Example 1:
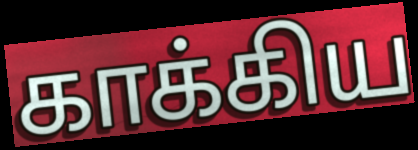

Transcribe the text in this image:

காக்கிய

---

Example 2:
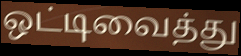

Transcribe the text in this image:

ஒட்டிவைத்து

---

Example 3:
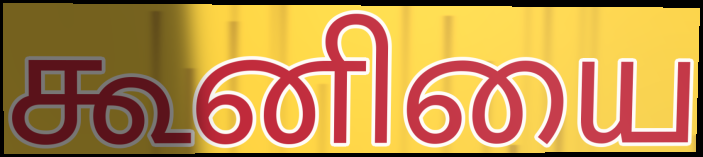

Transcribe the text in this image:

கூனியை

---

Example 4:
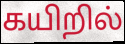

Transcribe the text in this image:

கயிறில்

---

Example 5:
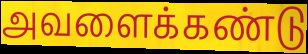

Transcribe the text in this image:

அவளைக்கண்டு